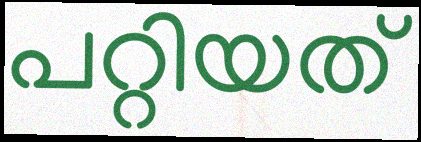
പറ്റിയത്